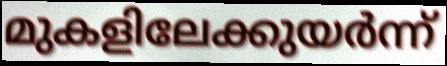
മുകളിലേക്കുയർന്ന്